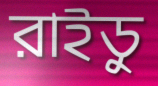
রাইডু